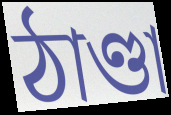
ঠাণ্ডা